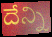
దేన్ని